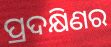
ପ୍ରଦକ୍ଷିଣର